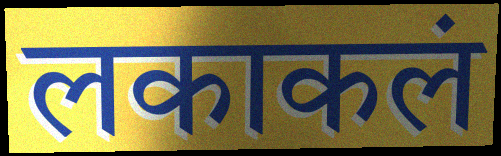
लकाकलं